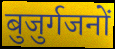
बुजुर्गजनों